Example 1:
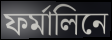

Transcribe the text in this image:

ফর্মালিনে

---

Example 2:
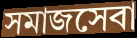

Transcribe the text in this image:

সমাজসেবা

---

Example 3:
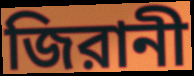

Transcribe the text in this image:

জিরানী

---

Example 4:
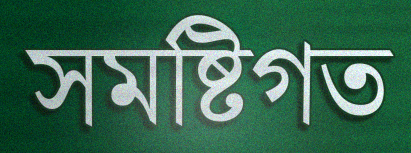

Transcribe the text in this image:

সমষ্টিগত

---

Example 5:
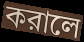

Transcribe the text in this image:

করালে